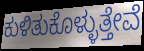
ಕುಳಿತುಕೊಳ್ಳುತ್ತೇವೆ